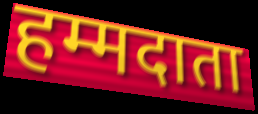
हम्मदाता